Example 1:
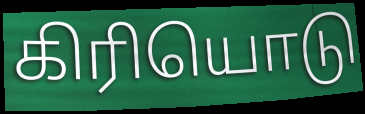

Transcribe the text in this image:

கிரியொடு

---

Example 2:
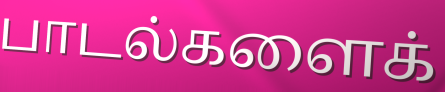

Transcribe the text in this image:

பாடல்களைக்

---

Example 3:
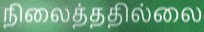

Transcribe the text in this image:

நிலைத்ததில்லை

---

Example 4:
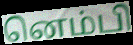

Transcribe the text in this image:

னெம்பி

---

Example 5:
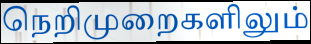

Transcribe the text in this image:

நெறிமுறைகளிலும்